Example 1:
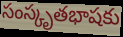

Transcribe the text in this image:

సంస్కృతభాషకు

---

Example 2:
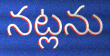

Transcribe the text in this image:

నట్లను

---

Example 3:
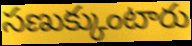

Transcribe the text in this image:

సణుక్కుంటారు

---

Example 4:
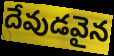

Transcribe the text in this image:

దేవుడవైన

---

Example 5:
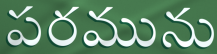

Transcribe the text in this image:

పరమును